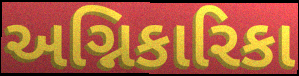
અગ્નિકારિકા